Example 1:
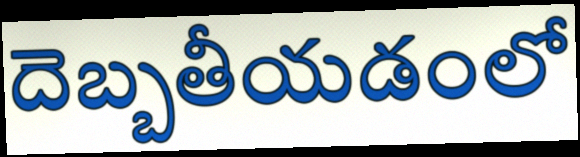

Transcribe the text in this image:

దెబ్బతీయడంలో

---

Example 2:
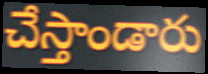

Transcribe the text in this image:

చేస్తాండారు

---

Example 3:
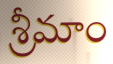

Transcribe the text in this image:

శ్రీమాం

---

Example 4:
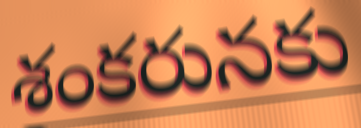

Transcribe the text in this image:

శంకరునకు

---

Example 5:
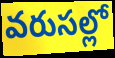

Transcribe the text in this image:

వరుసల్లో